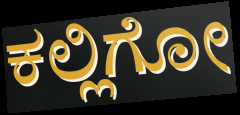
ಕಲ್ಲಿಗೋ